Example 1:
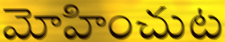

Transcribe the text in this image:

మోహించుట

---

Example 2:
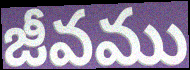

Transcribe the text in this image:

జీవము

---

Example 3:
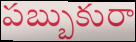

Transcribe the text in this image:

పబ్బుకురా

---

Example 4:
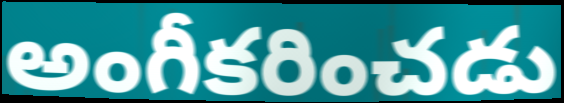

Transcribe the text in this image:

అంగీకరించడు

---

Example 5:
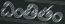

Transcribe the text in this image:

చింతితం